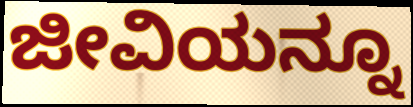
ಜೀವಿಯನ್ನೂ